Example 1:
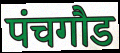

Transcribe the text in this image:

पंचगौड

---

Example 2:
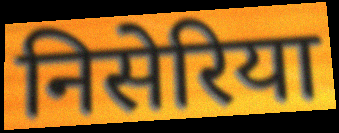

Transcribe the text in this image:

निसेरिया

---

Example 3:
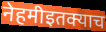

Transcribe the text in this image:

नेहमीइतक्याच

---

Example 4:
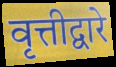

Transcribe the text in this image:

वृत्तीद्वारे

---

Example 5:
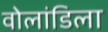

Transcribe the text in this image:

वोलांडिला